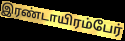
இரண்டாயிரம்பேர்